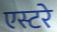
एस्टरे